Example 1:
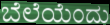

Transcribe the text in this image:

ಬೆಲೆಯೆಂದು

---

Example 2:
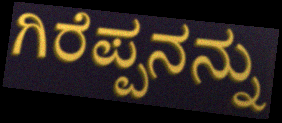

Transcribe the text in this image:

ಗಿರೆಪ್ಪನನ್ನು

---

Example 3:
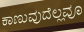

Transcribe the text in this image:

ಕಾಣುವುದೆಲ್ಲವೂ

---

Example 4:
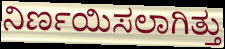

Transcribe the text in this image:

ನಿರ್ಣಯಿಸಲಾಗಿತ್ತು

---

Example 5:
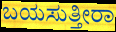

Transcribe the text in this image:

ಬಯಸುತ್ತೀರಾ